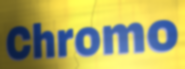
Chromo